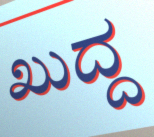
ಖುದ್ದ